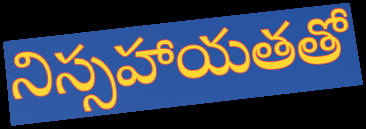
నిస్సహాయతతో